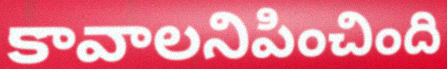
కావాలనిపించింది